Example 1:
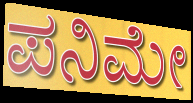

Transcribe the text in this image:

ಪನಿಮೇ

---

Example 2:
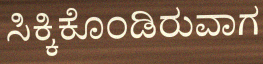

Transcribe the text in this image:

ಸಿಕ್ಕಿಕೊಂಡಿರುವಾಗ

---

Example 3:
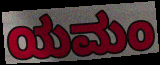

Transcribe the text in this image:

ಯಮಂ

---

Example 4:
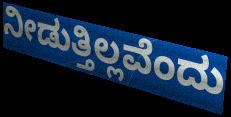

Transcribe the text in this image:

ನೀಡುತ್ತಿಲ್ಲವೆಂದು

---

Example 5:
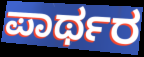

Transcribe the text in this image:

ಪಾರ್ಥರ